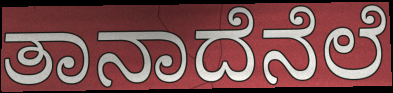
ತಾನಾದೆನೆಲೆ